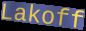
Lakoff